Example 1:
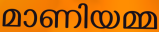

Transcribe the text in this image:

മാണിയമ്മ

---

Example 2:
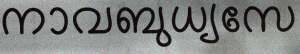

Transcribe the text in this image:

നാവബുധ്യസേ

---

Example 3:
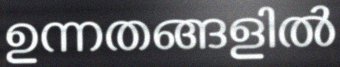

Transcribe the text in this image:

ഉന്നതങ്ങളിൽ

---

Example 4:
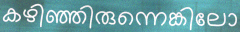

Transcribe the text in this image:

കഴിഞ്ഞിരുന്നെങ്കിലോ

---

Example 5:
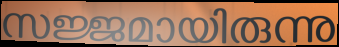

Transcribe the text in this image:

സജ്ജമായിരുന്നു